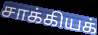
சாக்கியக்